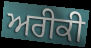
ਅਰੀਕੀ